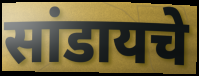
सांडायचे